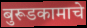
बुरूडकामाचे